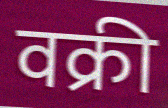
वक्री